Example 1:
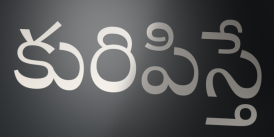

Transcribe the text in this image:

కురిపిస్తే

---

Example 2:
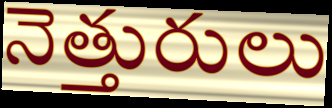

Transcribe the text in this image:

నెత్తురులు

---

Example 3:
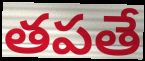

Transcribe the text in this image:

తపతే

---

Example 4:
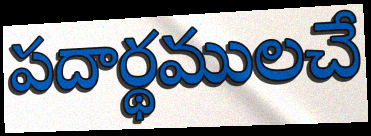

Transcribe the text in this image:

పదార్థములచే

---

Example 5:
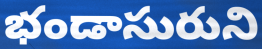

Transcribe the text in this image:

భండాసురుని